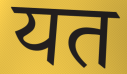
यत